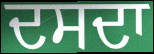
ਦਸਦਾ